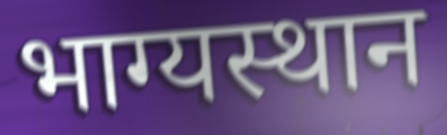
भाग्यस्थान